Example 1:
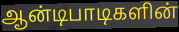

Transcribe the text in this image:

ஆன்டிபாடிகளின்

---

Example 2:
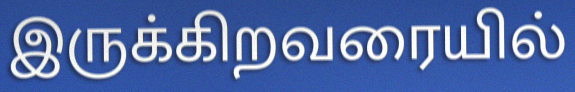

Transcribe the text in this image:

இருக்கிறவரையில்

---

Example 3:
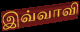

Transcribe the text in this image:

இவ்வாவி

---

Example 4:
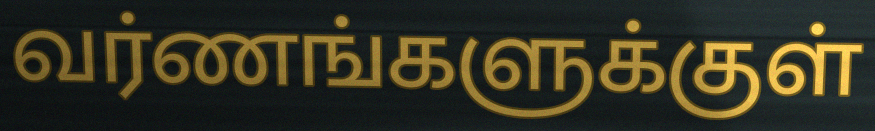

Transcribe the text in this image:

வர்ணங்களுக்குள்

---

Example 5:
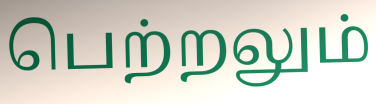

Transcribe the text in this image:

பெற்றலும்